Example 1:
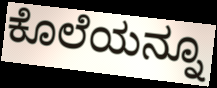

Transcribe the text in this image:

ಕೊಲೆಯನ್ನೂ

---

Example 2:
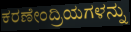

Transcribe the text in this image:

ಕರಣೇಂದ್ರಿಯಗಳನ್ನು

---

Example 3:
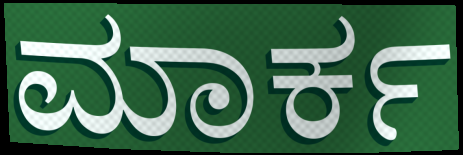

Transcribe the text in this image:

ಮಾರ್ಕ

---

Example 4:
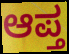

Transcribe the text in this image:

ಆಪ್ತ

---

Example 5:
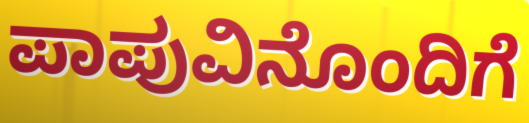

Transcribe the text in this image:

ಪಾಪುವಿನೊಂದಿಗೆ